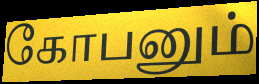
கோபனும்